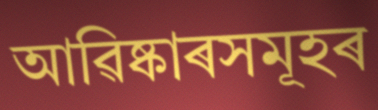
আৱিষ্কাৰসমূহৰ